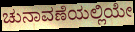
ಚುನಾವಣೆಯಲ್ಲಿಯೇ